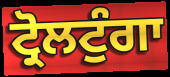
ਟ੍ਰੋਲਟੁੰਗਾ